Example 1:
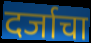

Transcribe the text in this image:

दर्जाचा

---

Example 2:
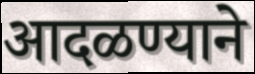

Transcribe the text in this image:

आदळण्याने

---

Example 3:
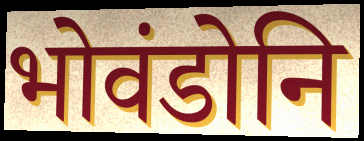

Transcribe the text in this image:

भोवंडोनि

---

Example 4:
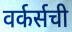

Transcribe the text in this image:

वर्कर्सची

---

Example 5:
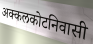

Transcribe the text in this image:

अक्कलकोटनिवासी